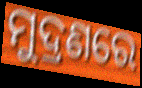
ମୁଦ୍ରଣରେ